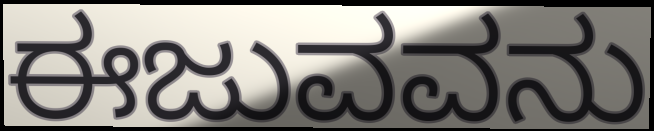
ಈಜುವವನು